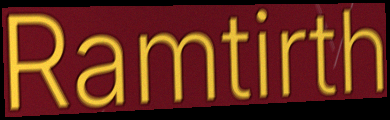
Ramtirth